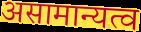
असामान्यत्व